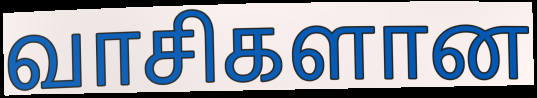
வாசிகளான